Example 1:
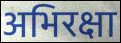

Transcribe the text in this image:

अभिरक्षा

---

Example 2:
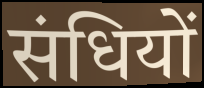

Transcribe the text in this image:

संधियों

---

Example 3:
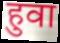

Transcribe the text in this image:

हुवा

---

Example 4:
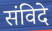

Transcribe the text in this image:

संविदे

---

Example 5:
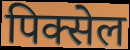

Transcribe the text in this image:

पिक्सेल